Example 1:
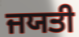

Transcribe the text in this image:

ਜਯਤੀ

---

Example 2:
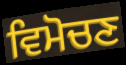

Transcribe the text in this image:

ਵਿਮੋਚਣ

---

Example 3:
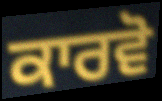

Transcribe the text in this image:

ਕਾਰਵੋ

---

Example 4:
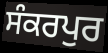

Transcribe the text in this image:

ਸੰਕਰਪੁਰ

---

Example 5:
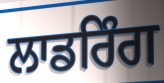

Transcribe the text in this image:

ਲਾਡਰਿੰਗ